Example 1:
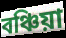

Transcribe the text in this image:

বঞ্চিয়া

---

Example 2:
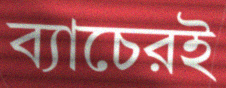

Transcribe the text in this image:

ব্যাচেরই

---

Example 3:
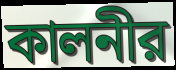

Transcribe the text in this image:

কালনীর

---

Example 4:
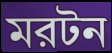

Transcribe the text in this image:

মরটন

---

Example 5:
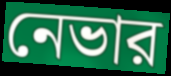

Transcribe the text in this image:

নেভার